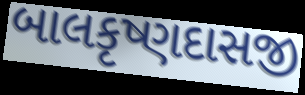
બાલકૃષ્ણદાસજી